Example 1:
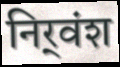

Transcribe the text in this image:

निर्वंश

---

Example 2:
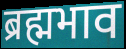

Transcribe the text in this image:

ब्रह्मभाव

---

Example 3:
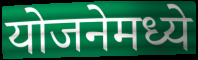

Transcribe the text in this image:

योजनेमध्ये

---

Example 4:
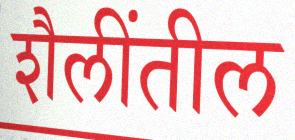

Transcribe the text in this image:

शैलींतील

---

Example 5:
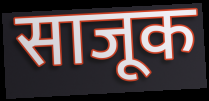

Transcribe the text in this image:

साजूक